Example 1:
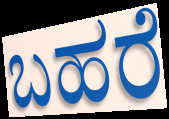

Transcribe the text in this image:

ಬಹರೆ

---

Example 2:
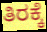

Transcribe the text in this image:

ತಿರಕ್ಕೆ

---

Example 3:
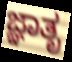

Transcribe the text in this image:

ಜ್ಞಾತೃ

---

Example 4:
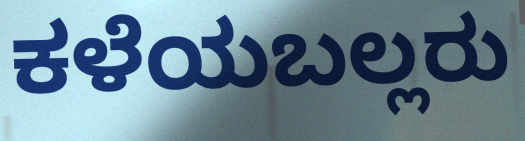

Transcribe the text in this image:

ಕಳೆಯಬಲ್ಲರು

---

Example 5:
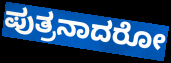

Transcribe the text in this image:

ಪುತ್ರನಾದರೋ